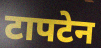
टापटेन